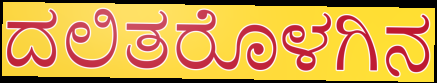
ದಲಿತರೊಳಗಿನ